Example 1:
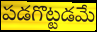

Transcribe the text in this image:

పడగొట్టడమే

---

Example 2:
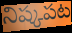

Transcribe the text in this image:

నిష్కపట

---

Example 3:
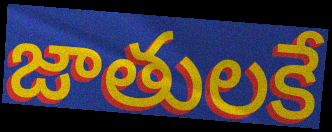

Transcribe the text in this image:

జాతులకే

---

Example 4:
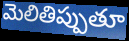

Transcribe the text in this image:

మెలితిప్పుతూ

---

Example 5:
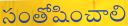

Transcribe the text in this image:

సంతోషించాలి